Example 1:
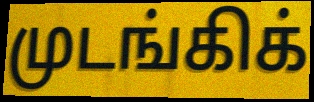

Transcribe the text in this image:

முடங்கிக்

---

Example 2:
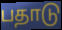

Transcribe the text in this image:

பதாடு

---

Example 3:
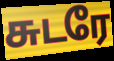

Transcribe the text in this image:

சுடரே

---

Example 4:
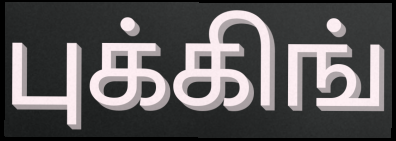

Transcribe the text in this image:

புக்கிங்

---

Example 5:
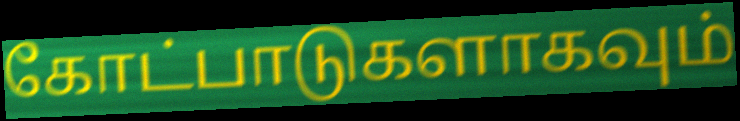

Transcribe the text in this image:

கோட்பாடுகளாகவும்